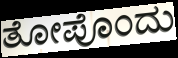
ತೋಪೊಂದು